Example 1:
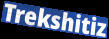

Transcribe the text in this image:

Trekshitiz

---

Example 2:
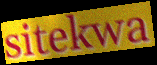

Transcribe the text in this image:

sitekwa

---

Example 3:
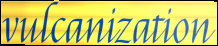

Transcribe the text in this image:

vulcanization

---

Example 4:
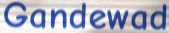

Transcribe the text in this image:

Gandewad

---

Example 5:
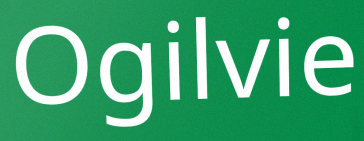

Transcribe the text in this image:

Ogilvie